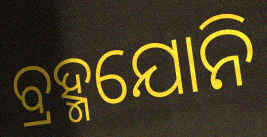
ବ୍ରହ୍ମଯୋନି